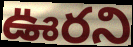
ఊరని